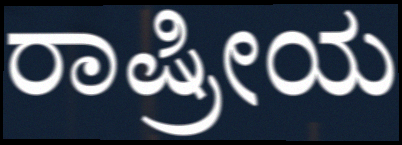
ರಾಷ್ರೀಯ